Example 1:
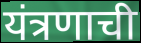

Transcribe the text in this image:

यंत्रणाची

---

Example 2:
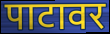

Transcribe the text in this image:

पाटावर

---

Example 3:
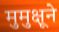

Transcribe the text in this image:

मुमुक्षूने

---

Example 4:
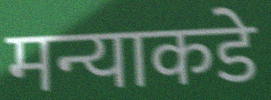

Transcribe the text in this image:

मन्याकडे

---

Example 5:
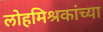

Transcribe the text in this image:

लोहमिश्रकांच्या